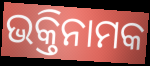
ଭକ୍ତିନାମକ